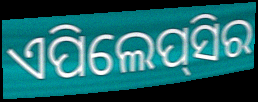
ଏପିଲେପ୍‌ସିର